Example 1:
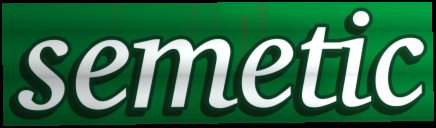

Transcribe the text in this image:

semetic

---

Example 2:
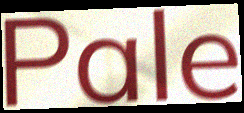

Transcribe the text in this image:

Pale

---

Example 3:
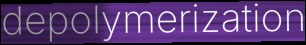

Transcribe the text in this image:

depolymerization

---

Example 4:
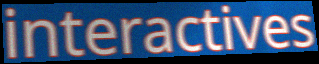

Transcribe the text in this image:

interactives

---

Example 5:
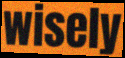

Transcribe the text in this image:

wisely